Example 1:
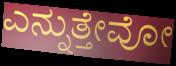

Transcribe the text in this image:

ಎನ್ನುತ್ತೇವೋ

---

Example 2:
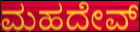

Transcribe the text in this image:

ಮಹದೇವ್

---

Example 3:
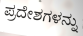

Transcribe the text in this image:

ಪ್ರದೇಶಗಳನ್ನು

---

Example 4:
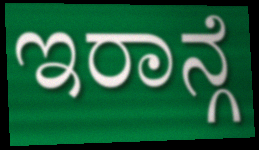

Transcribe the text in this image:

ಇರಾನ್ಗೆ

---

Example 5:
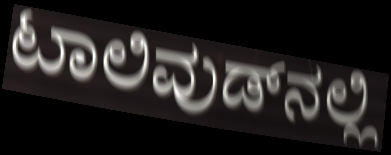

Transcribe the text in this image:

ಟಾಲಿವುಡ್‌ನಲ್ಲಿ